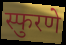
स्फुरणे